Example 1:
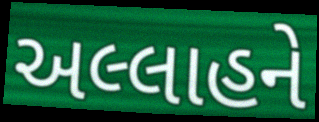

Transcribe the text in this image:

અલ્લાહને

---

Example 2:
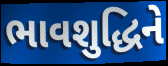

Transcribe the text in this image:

ભાવશુદ્ધિને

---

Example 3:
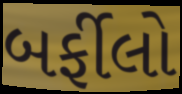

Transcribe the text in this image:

બર્ફીલો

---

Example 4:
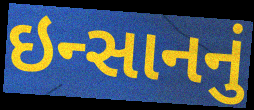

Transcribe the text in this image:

ઇન્સાનનું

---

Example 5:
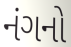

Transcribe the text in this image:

નંગનો